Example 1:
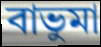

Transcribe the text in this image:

বাভুমা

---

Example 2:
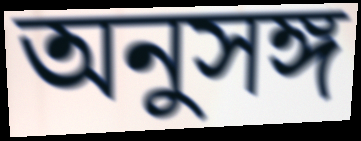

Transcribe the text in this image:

অনুসঙ্গ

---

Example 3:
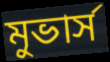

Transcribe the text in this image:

মুভার্স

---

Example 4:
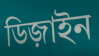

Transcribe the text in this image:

ডিজ়াইন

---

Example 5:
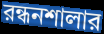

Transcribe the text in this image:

রন্ধনশালার